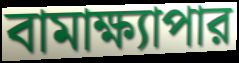
বামাক্ষ্যাপার